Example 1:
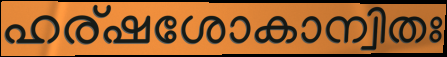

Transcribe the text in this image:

ഹര്ഷശോകാന്വിതഃ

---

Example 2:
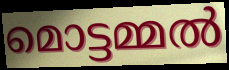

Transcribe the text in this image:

മൊട്ടമ്മൽ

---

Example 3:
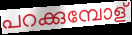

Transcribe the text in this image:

പറക്കുമ്പോള്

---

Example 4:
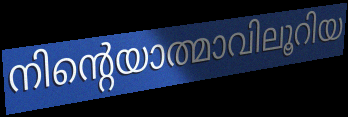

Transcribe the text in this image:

നിന്റെയാത്മാവിലൂറിയ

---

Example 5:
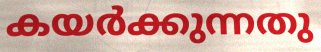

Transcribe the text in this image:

കയർക്കുന്നതു